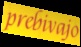
prebivajo